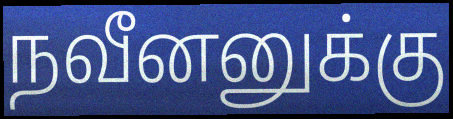
நவீனனுக்கு